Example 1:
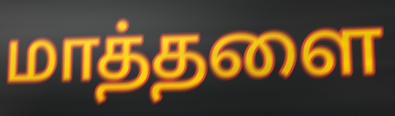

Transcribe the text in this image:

மாத்தளை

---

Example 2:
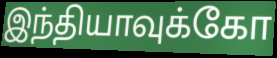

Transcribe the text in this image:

இந்தியாவுக்கோ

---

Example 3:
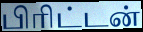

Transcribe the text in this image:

பிரிட்டன்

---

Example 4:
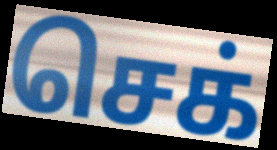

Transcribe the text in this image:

செக்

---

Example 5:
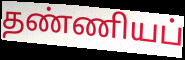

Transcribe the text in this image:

தண்ணியப்